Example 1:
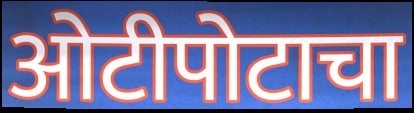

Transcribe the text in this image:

ओटीपोटाचा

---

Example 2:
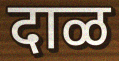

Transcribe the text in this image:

दाळ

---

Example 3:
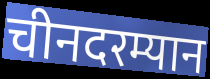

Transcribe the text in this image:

चीनदरम्यान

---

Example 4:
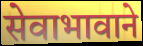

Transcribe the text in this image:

सेवाभावाने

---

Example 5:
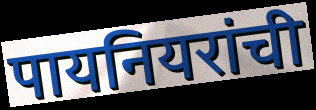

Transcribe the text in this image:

पायनियरांची